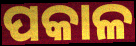
ପକାଳ